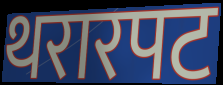
थरारपट